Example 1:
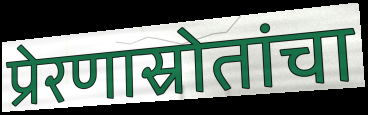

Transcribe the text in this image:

प्रेरणास्रोतांचा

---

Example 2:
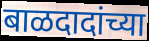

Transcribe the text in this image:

बाळदादांच्या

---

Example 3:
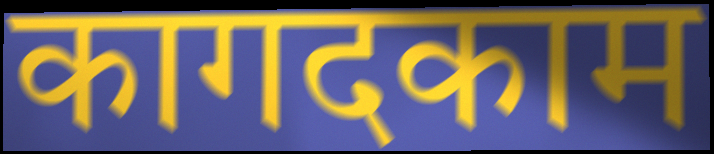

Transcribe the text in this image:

कागदकाम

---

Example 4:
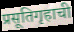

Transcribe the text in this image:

प्रसूतिगृहाची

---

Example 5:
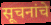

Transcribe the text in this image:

सूचनांचे